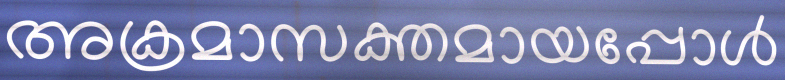
അക്രമാസക്തമായപ്പോൾ